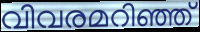
വിവരമറിഞ്ഞ്